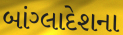
બાંગ્લાદેશના